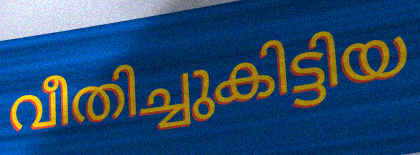
വീതിച്ചുകിട്ടിയ